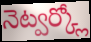
నెట్వర్క్లో